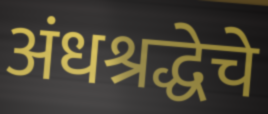
अंधश्रद्धेचे